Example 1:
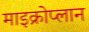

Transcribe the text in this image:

माइक्रोप्लान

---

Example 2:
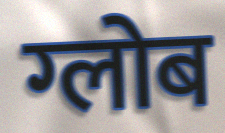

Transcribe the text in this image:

ग्‍लोब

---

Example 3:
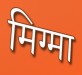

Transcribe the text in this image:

मिग्मा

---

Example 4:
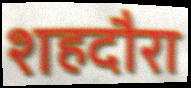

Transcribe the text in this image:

शहदौरा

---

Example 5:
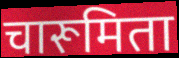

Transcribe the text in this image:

चारूमिता